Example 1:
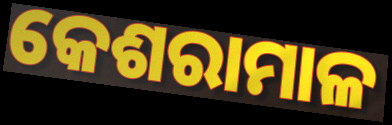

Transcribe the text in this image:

କେଶରାମାଳ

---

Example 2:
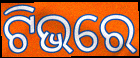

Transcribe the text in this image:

ଟିଭରେ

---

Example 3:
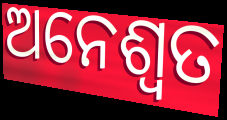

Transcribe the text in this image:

ଅନେଶ୍ଵତ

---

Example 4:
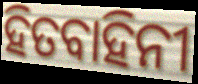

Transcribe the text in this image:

ହିତବାହିନୀ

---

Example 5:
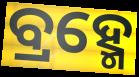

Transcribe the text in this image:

ବ୍ରହ୍ମେ